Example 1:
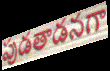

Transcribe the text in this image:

పుడతాడనగా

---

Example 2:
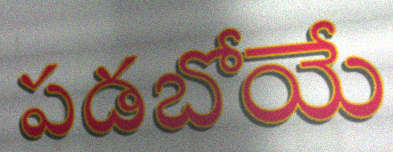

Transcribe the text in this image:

పడబోయే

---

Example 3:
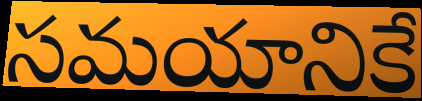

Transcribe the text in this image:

సమయానికే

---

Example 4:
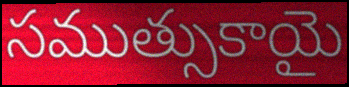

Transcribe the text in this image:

సముత్సుకాయై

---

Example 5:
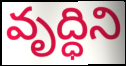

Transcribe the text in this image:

వృద్ధిని